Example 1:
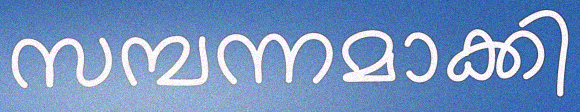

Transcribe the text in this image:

സമ്പന്നമാക്കി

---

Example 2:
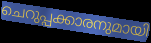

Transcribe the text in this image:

ചെറുപ്പക്കാരനുമായി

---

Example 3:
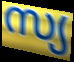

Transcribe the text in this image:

സ്യ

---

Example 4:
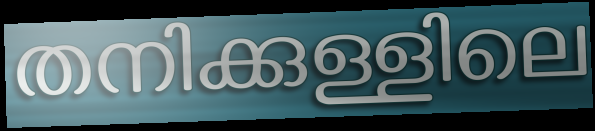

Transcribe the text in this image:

തനിക്കുള്ളിലെ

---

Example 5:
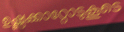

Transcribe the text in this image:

ഉഷ്ണക്കാറ്റോടുകൂടെ